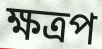
ক্ষত্রপ